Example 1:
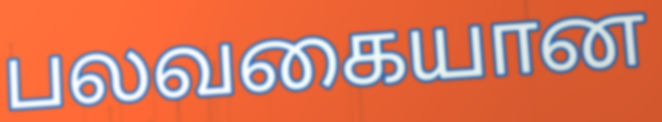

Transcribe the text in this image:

பலவகையான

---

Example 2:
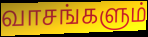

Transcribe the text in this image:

வாசங்களும்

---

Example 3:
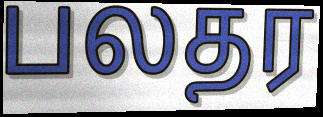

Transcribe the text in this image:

பலதர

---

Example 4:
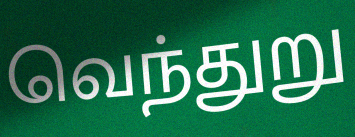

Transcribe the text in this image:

வெந்துறு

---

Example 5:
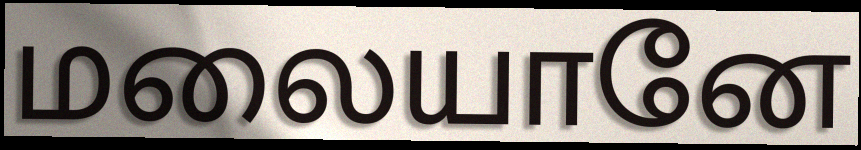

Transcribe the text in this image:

மலையானே